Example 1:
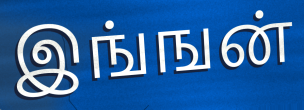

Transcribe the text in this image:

இங்ஙன்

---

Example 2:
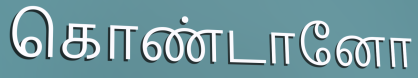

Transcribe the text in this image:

கொண்டானோ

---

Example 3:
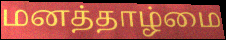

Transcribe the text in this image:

மனத்தாழ்மை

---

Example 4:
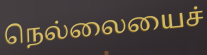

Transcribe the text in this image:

நெல்லையைச்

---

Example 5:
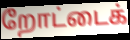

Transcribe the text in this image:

றோட்டைக்